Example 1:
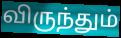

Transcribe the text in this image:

விருந்தும்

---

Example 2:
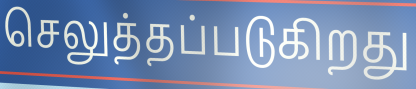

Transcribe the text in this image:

செலுத்தப்படுகிறது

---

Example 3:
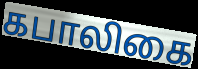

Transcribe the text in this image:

கபாலிகை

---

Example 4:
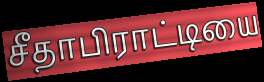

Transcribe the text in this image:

சீதாபிராட்டியை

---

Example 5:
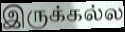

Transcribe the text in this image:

இருக்கல்ல